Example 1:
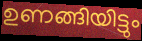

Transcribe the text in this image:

ഉണങ്ങിയിട്ടും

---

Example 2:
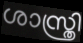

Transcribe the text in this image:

ശാസ്ത്രി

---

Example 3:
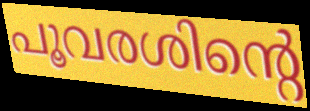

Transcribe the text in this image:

പൂവരശിന്റെ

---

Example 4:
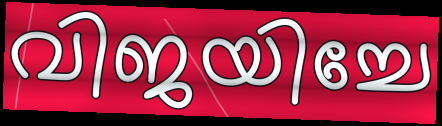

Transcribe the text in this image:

വിജയിച്ചേ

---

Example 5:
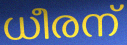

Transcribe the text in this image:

ധീരന്